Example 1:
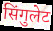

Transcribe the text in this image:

सिंगुलेट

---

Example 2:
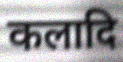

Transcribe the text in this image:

कलादि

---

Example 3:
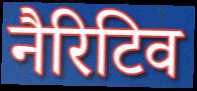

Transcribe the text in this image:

नैरिटिव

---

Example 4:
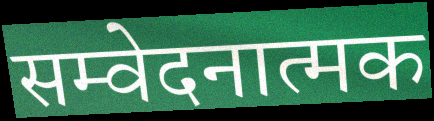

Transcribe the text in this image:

सम्वेदनात्मक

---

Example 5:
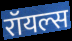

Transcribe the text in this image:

रॉयल्स